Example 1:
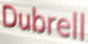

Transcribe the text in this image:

Dubrell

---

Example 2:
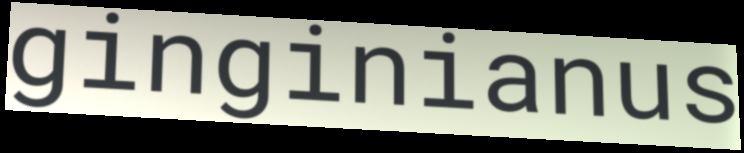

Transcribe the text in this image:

ginginianus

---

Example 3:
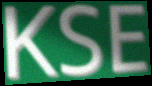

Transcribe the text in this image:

KSE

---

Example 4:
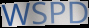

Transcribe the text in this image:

WSPD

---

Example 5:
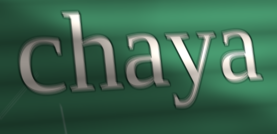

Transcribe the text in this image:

chaya